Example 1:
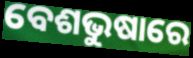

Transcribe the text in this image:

ବେଶଭୁଷାରେ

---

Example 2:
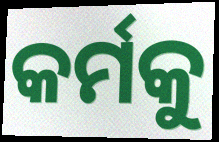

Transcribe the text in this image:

କର୍ମକୁ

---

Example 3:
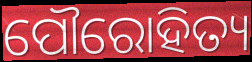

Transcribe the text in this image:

ପୌରୋହିତ୍ୟ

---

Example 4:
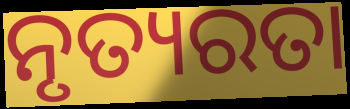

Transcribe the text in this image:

ନୃତ୍ୟରତା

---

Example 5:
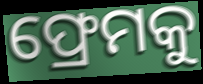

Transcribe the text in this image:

ଫ୍ରେମକୁ